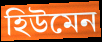
হিউমেন